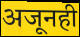
अजूनही